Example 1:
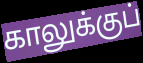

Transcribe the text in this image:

காலுக்குப்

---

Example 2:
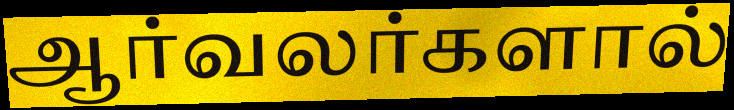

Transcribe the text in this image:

ஆர்வலர்களால்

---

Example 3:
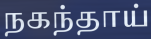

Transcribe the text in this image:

நகந்தாய்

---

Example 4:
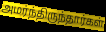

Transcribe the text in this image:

அமர்ந்திருந்தார்கள்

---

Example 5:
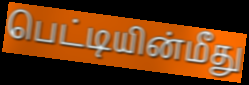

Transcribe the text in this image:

பெட்டியின்மீது